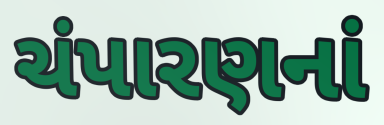
ચંપારણનાં